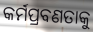
କର୍ମପ୍ରବଣତାକୁ